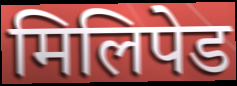
मिलिपेड